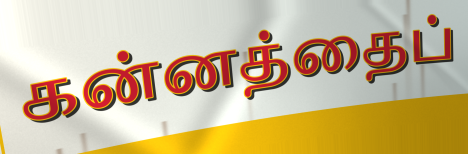
கன்னத்தைப்